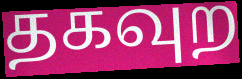
தகவுற